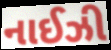
નાઈઝી